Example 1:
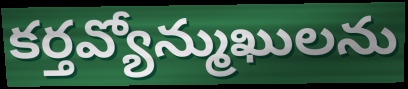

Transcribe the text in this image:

కర్తవ్యోన్ముఖులను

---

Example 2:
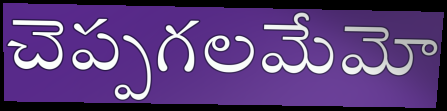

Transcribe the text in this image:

చెప్పగలమేమో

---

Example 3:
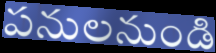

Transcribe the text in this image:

పనులనుండి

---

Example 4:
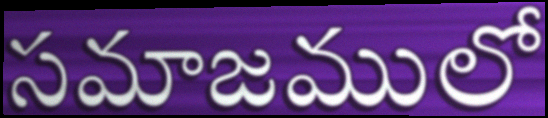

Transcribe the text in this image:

సమాజములో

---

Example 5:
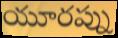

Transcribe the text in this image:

యూరప్ను